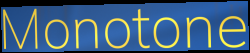
Monotone